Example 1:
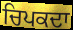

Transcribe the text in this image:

ਚਿਪਕਦਾ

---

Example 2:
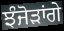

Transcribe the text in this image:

ਝੰਜੋੜਾਂਗੇ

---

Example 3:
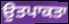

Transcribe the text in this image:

ਉਤਪਾਕਤਾ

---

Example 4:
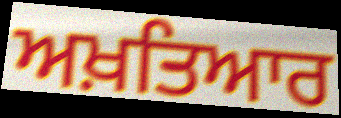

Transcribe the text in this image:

ਅਖ਼ਤਿਆਰ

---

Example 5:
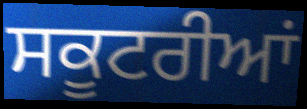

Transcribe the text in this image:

ਸਕੂਟਰੀਆਂ